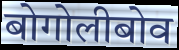
बोगोलीबोव